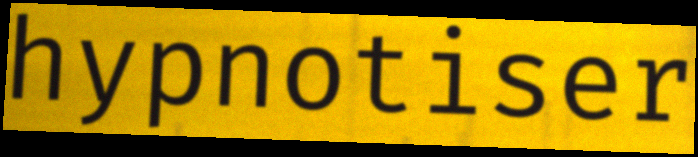
hypnotiser